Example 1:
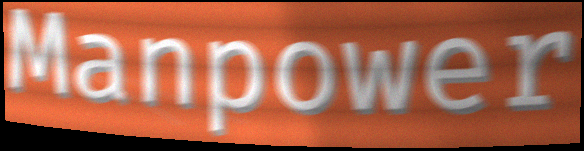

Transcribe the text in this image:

Manpower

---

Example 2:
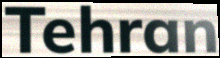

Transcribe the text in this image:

Tehran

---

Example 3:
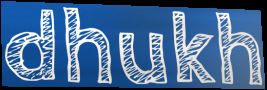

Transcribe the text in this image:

dhukh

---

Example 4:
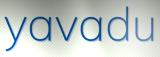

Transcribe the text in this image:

yavadu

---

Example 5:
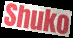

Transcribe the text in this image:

Shuko